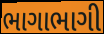
ભાગાભાગી